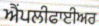
ਐੰਪਲੀਫਾਈਅਰ